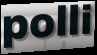
polli